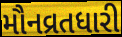
મૌનવ્રતધારી